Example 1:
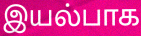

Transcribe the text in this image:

இயல்பாக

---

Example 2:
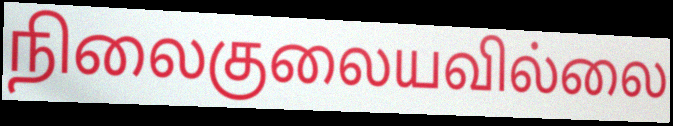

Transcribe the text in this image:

நிலைகுலையவில்லை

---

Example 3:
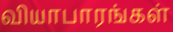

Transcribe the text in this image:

வியாபாரங்கள்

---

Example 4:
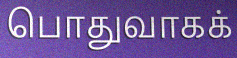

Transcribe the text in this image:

பொதுவாகக்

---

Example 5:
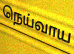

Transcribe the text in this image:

நெய்வாய